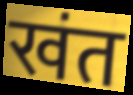
खंत